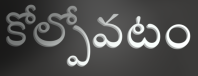
కోల్పోవటం